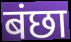
बंछा